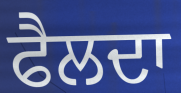
ਫੈਲਦਾ